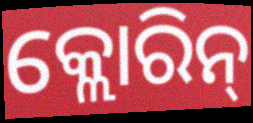
କ୍ଲୋରିନ୍